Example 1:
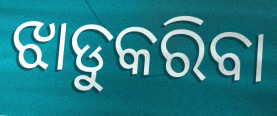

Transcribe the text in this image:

ଝାଡୁକରିବା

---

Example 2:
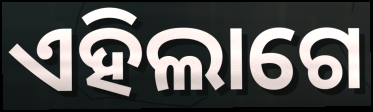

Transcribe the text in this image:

ଏହିଲାଗେ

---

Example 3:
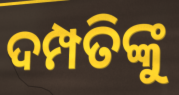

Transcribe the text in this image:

ଦମ୍ପତିଙ୍କୁ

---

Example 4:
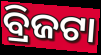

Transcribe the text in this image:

ବ୍ରିଜଟା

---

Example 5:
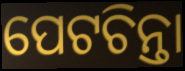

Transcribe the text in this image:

ପେଟଚିନ୍ତା